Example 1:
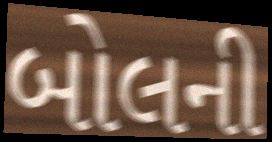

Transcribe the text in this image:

બોલની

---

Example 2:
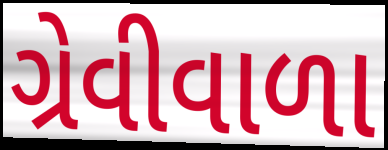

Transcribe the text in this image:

ગ્રેવીવાળા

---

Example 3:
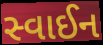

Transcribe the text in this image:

સ્વાઈન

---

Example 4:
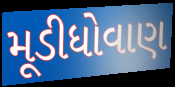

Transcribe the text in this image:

મૂડીધોવાણ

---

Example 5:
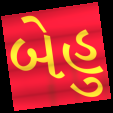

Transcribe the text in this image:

બેહુ